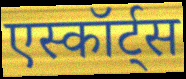
एस्कॉर्ट्स